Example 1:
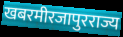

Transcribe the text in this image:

खबरमीरजापुरराज्य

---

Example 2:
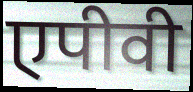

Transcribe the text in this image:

एपीवी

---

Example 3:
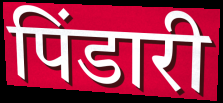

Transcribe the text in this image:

पिंडारी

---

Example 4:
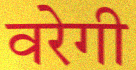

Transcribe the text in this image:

वरेगी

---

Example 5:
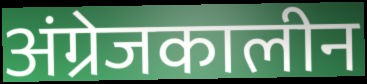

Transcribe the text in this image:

अंग्रेजकालीन